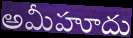
అమీహూదు